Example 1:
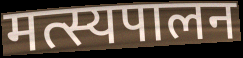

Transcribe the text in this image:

मत्स्यपालन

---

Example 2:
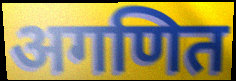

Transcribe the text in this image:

अगणित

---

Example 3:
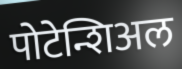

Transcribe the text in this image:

पोटेन्शिअल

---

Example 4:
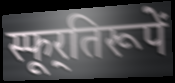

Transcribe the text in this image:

स्फूर्तिरूपें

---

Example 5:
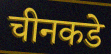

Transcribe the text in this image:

चीनकडे